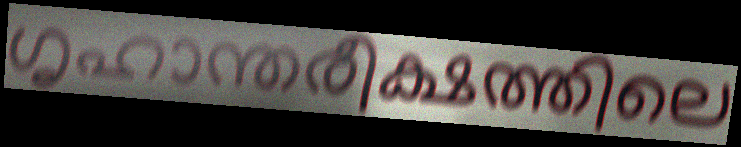
ഗൃഹാന്തരീക്ഷത്തിലെ